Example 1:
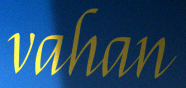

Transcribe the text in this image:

vahan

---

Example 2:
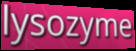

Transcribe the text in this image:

lysozyme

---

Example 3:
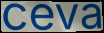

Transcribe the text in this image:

ceva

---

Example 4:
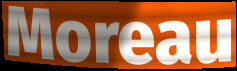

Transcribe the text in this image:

Moreau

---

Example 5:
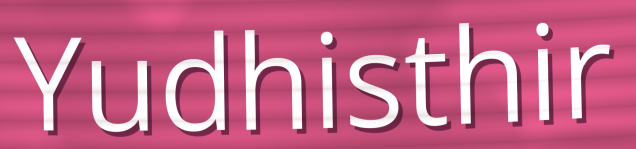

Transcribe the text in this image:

Yudhisthir